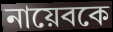
নায়েবকে